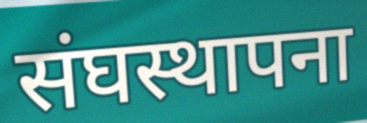
संघस्थापना